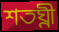
শতঘ্নী